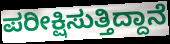
ಪರೀಕ್ಷಿಸುತ್ತಿದ್ದಾನೆ